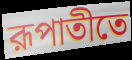
রূপাতীতে